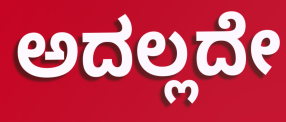
ಅದಲ್ಲದೇ